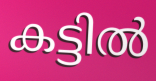
കട്ടിൽ